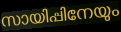
സായിപ്പിനേയും